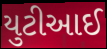
યુટીઆઈ